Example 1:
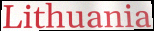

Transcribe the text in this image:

Lithuania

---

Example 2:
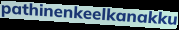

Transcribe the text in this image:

pathinenkeelkanakku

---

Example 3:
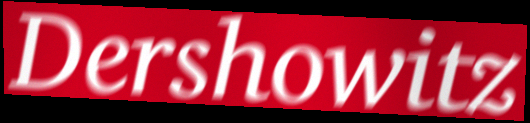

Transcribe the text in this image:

Dershowitz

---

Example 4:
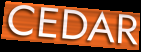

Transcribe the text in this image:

CEDAR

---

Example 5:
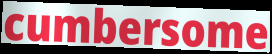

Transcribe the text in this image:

cumbersome